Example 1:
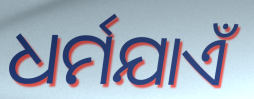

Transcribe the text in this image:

ଧର୍ମଯାଏଁ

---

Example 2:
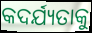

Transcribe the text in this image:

କଦର୍ଯ୍ୟତାକୁ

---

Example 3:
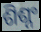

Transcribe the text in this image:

ଶିଶ୍ନଂ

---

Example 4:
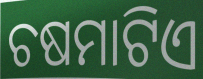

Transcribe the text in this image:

ଚଷମାଟିଏ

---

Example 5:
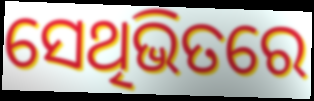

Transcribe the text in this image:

ସେଥିଭିତରେ